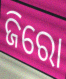
ଜିରୋ